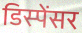
डिस्पेंसर